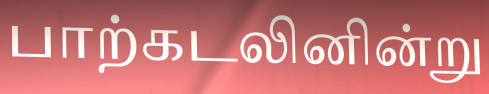
பாற்கடலினின்று